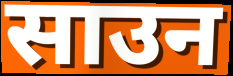
साउन